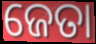
ଜେତା